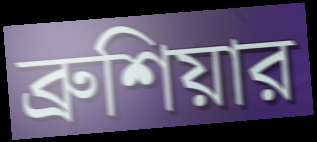
ব্রুশিয়ার